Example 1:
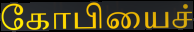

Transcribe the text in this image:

கோபியைச்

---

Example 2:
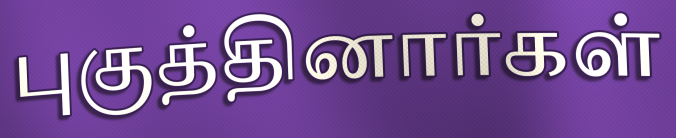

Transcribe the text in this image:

புகுத்தினார்கள்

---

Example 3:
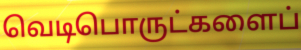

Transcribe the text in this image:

வெடிபொருட்களைப்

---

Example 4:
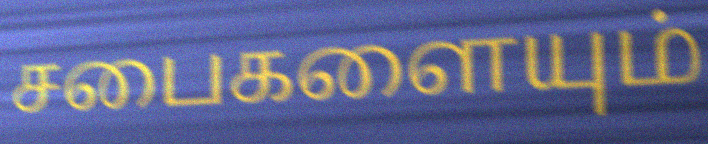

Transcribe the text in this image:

சபைகளையும்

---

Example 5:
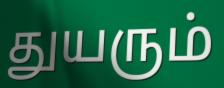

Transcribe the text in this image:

துயரும்